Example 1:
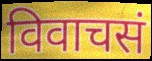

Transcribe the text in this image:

विवाचसं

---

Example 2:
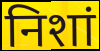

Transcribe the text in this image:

निशां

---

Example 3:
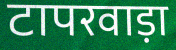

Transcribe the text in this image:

टापरवाड़ा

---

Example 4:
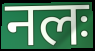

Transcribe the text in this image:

नलः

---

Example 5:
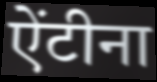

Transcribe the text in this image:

ऐंटीना